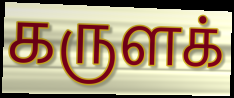
கருளக்